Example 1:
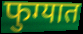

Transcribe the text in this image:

फुग्यात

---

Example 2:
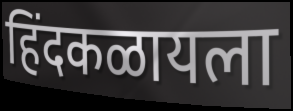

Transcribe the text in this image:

हिंदकळायला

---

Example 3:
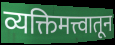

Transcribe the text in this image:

व्यक्तिमत्त्वातून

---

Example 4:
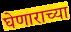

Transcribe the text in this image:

घेणाराच्या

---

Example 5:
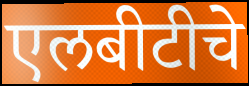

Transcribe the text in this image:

एलबीटीचे